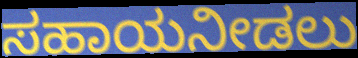
ಸಹಾಯನೀಡಲು